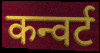
कन्वर्ट